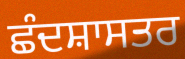
ਛੰਦਸ਼ਾਸਤਰ